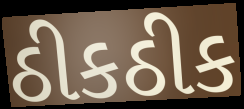
ઠીકઠીક